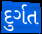
દુર્ગત